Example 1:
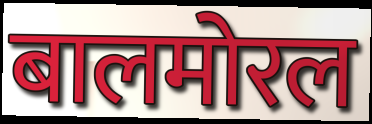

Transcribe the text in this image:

बालमोरल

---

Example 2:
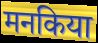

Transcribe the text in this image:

मनकिया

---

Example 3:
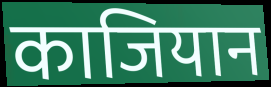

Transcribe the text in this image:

काजियान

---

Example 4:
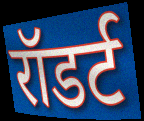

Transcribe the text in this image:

रॉडर्ट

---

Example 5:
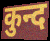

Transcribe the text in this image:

कुन्द